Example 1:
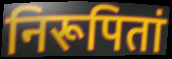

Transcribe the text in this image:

निरूपितां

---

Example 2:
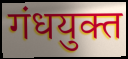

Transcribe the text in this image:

गंधयुक्‍त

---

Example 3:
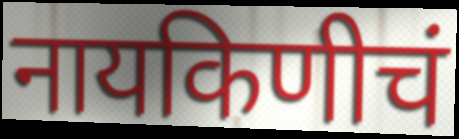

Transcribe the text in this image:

नायकिणीचं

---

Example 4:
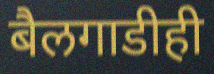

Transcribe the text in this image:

बैलगाडीही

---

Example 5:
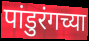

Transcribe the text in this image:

पांडुरंगच्या